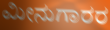
ಮೀನುಗಾರರ